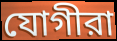
যোগীরা